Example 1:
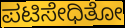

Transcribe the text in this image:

ಪಟಿಸೇಧಿತೋ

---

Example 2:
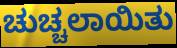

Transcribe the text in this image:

ಚುಚ್ಚಲಾಯಿತು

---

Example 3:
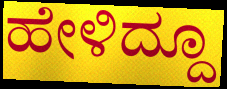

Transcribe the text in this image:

ಹೇಳಿದ್ದೂ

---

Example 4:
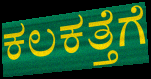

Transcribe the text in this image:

ಕಲಕತ್ತೆಗೆ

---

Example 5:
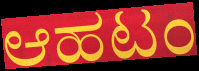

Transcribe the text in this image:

ಆಹಟಂ